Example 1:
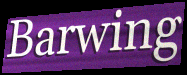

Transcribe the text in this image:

Barwing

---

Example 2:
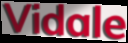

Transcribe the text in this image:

Vidale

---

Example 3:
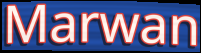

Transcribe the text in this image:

Marwan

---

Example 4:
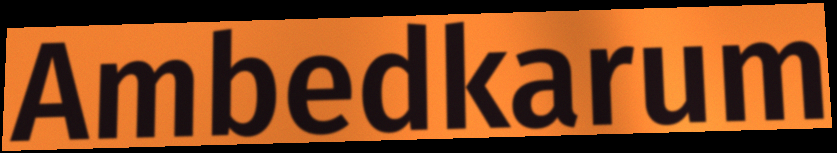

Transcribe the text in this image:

Ambedkarum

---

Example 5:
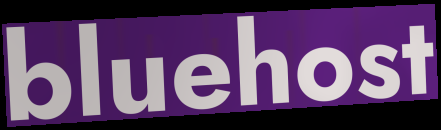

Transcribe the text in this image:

bluehost